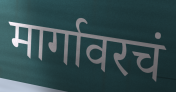
मार्गावरचं